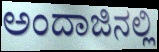
ಅಂದಾಜಿನಲ್ಲಿ